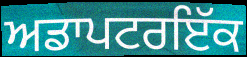
ਅਡਾਪਟਰਇੱਕ